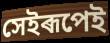
সেইৰূপেই